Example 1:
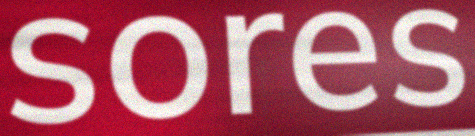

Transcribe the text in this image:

sores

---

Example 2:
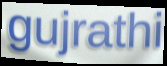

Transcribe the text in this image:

gujrathi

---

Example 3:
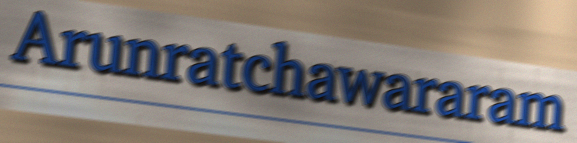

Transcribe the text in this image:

Arunratchawararam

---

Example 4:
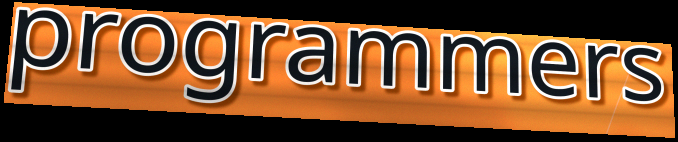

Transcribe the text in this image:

programmers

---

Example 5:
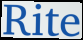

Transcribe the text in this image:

Rite